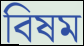
বিষম